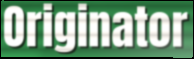
Originator